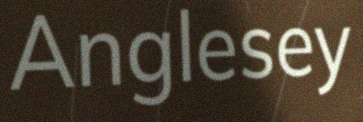
Anglesey